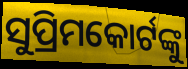
ସୁପ୍ରିମକୋର୍ଟଙ୍କୁ